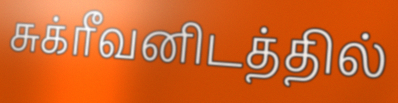
சுக்ரீவனிடத்தில்